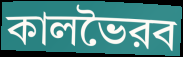
কালভৈরব